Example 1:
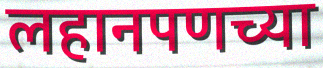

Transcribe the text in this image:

लहानपणच्या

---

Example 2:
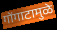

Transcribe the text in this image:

गोंगाटामुळे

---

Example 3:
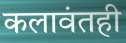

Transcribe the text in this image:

कलावंतही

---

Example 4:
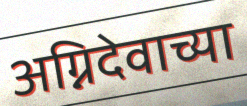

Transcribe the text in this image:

अग्निदेवाच्या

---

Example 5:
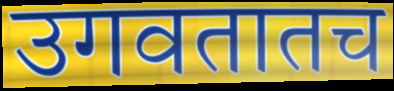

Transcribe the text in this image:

उगवतातच